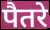
पैतरे